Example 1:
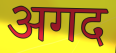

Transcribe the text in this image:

अगद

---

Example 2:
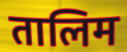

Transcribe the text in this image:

तालिम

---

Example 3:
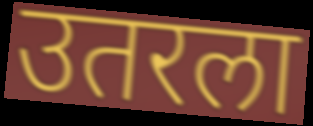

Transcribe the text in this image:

उतरला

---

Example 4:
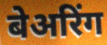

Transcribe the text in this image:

बेअरिंग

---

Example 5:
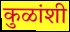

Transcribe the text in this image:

कुळांशी